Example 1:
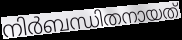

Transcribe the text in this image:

നിർബന്ധിതനായത്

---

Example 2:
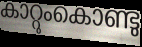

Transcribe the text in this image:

കാറ്റുംകൊണ്ടു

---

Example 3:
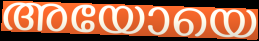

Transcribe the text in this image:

അയോയെ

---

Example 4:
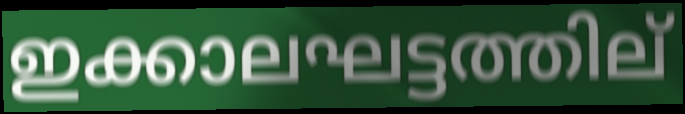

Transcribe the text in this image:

ഇക്കാലഘട്ടത്തില്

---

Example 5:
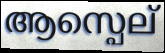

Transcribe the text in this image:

ആസ്പെല്